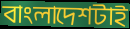
বাংলাদেশটাই